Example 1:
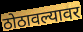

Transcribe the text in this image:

ठोठावल्यावर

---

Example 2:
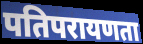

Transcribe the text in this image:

पतिपरायणता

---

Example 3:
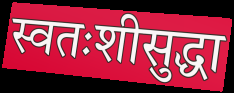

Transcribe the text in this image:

स्वतःशीसुद्धा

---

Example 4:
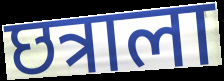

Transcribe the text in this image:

छत्राला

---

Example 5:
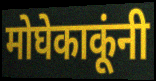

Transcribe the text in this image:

मोघेकाकूंनी